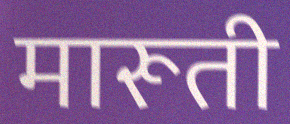
मारूती